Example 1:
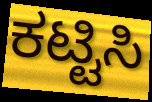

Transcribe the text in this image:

ಕಟ್ಟಿಸಿ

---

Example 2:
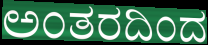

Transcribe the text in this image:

ಅಂತರದಿಂದ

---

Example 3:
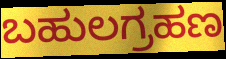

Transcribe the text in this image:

ಬಹುಲಗ್ರಹಣ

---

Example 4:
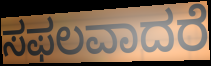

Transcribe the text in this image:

ಸಫಲವಾದರೆ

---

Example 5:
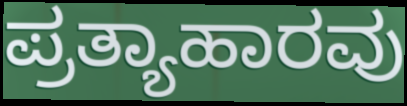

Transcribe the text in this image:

ಪ್ರತ್ಯಾಹಾರವು